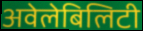
अवेलेबिलिटी